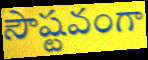
సౌష్టవంగా